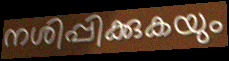
നശിപ്പിക്കുകയും